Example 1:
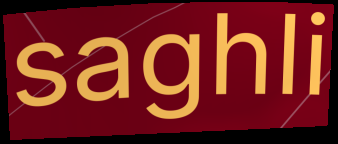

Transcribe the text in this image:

saghli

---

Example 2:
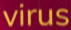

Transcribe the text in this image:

virus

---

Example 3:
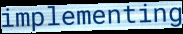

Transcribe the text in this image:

implementing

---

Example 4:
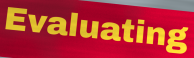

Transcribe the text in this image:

Evaluating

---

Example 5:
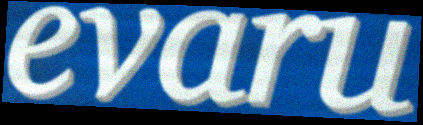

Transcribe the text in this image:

evaru